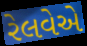
રેલવેએ